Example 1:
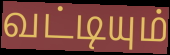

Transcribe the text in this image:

வட்டியும்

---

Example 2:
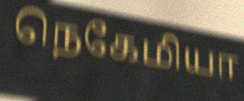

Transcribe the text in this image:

நெகேமியா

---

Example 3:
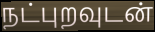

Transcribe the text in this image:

நட்புறவுடன்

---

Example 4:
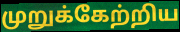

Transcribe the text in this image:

முறுக்கேற்றிய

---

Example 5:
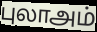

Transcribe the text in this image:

புலாஅம்